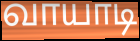
வாயாடி